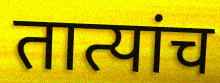
तात्यांच